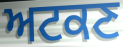
ਅਟਕਣ